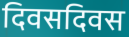
दिवसदिवस